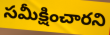
సమీక్షించారని